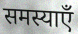
समस्याएँ